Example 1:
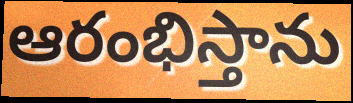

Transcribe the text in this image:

ఆరంభిస్తాను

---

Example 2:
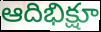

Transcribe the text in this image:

ఆదిభిక్షూ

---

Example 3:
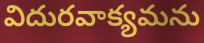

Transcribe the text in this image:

విదురవాక్యమను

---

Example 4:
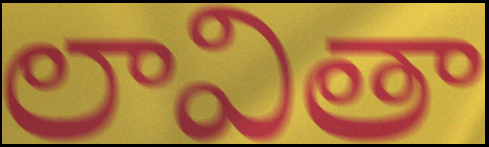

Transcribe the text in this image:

లావితా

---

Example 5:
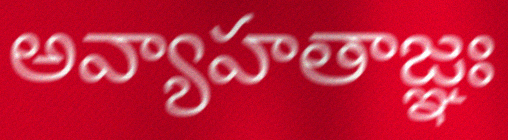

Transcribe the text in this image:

అవ్యాహతాజ్ఞః